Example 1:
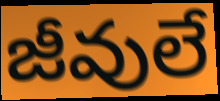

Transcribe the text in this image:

జీవులే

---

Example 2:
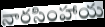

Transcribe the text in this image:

నారసింహాయ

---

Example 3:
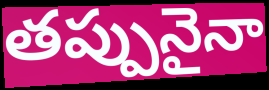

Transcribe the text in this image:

తప్పునైనా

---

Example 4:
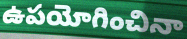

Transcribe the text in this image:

ఉపయోగించినా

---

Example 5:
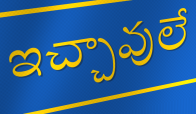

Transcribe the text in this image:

ఇచ్చావులే